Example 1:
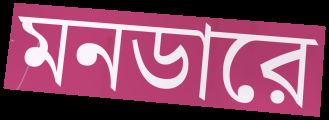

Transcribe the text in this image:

মনডারে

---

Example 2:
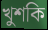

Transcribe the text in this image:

খুশকি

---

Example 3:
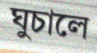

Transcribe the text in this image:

ঘুচালে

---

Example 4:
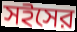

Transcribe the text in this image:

সইসের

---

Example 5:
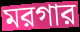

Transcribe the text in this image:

মরগার